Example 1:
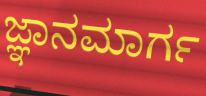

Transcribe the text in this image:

ಜ್ಞಾನಮಾರ್ಗ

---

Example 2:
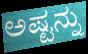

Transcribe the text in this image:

ಅಷ್ಟನ್ನು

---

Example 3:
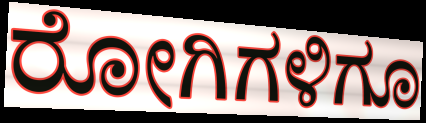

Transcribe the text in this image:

ರೋಗಿಗಳಿಗೂ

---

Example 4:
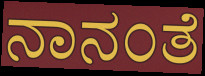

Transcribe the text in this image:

ನಾನಂತೆ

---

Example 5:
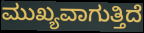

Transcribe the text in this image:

ಮುಖ್ಯವಾಗುತ್ತಿದೆ